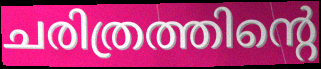
ചരിത്രത്തിന്റെ